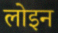
लोइन